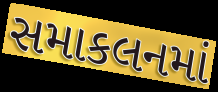
સમાકલનમાં